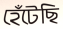
হেঁটেছি